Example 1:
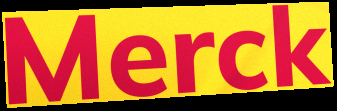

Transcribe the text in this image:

Merck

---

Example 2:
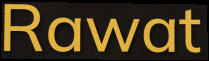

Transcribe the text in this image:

Rawat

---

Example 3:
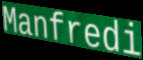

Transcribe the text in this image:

Manfredi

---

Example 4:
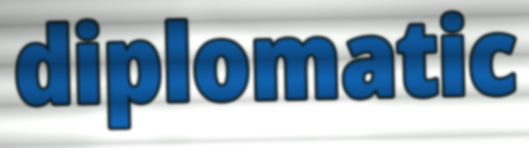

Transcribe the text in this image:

diplomatic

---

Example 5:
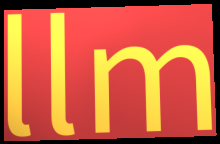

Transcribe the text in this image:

llm